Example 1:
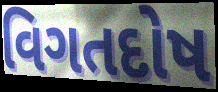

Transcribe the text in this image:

વિગતદોષ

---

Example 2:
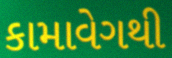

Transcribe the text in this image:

કામાવેગથી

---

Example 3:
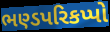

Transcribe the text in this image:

ભણ્ડપરિકપ્પો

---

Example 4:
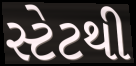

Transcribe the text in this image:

સ્ટેટથી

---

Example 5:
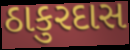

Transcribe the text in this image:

ઠાકુરદાસ